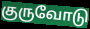
குருவோடு